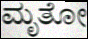
ಮೃತೋ